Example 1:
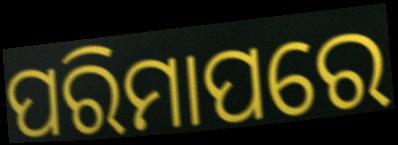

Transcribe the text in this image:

ପରିମାପରେ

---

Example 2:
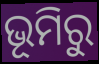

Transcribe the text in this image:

ଭୂମିରୁ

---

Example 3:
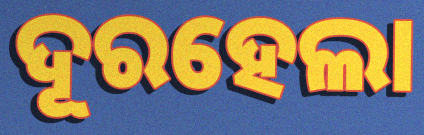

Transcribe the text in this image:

ଦୂରହେଲା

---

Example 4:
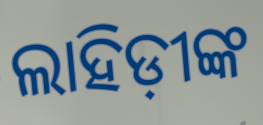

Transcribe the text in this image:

ଲାହିଡ଼ୀଙ୍କ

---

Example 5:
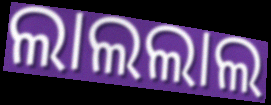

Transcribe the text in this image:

ଲାଲଲାଲ